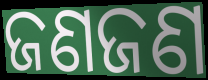
ଜଣଜଣ